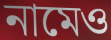
নামেও